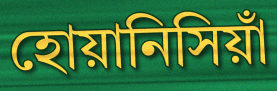
হোয়ানিসিয়াঁ